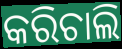
କରିଚାଲି